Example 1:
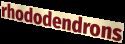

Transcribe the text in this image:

rhododendrons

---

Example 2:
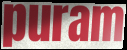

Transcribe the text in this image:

puram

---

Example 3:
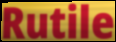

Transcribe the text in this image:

Rutile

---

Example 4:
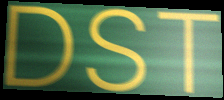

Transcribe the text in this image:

DST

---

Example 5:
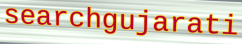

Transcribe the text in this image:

searchgujarati